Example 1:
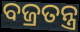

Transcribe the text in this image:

ବଜ୍ରତନ୍ତ୍ର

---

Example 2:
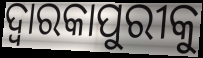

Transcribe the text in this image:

ଦ୍ୱାରକାପୁରୀକୁ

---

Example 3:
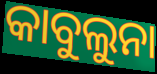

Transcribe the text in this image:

କାବୁଲୁନା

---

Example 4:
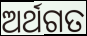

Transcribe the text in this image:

ଅର୍ଥଗତ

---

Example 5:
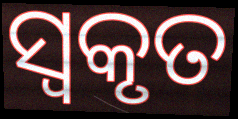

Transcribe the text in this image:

ସ୍ୱକୃତ